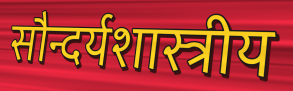
सौन्दर्यशास्त्रीय